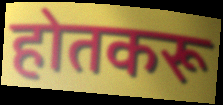
होतकरू